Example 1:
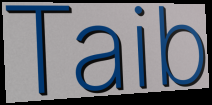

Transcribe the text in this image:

Taib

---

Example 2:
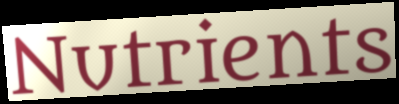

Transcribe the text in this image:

Nutrients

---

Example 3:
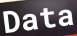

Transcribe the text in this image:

Data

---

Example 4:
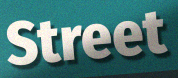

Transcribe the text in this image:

Street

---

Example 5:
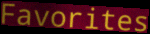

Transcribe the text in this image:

Favorites